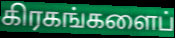
கிரகங்களைப்